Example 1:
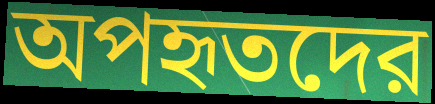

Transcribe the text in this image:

অপহৃতদের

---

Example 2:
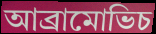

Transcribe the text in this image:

আব্রামোভিচ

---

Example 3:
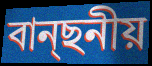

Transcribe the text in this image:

বান্ছনীয়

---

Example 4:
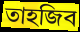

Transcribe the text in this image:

তাহজিব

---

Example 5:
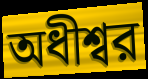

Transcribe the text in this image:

অধীশ্বর